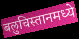
बलुचिस्तानमध्ये